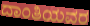
ದಾಂತಿಯವರ